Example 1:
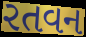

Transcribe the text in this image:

રતવન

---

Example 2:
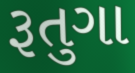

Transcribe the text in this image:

રૂતુગા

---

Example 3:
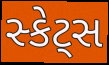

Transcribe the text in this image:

સ્કેટ્સ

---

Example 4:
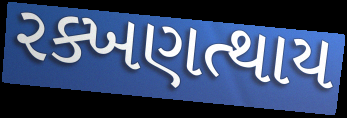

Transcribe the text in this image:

રક્ખણત્થાય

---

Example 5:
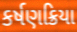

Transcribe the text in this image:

કર્ષણક્રિયા